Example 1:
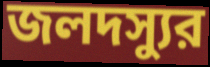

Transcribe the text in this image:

জলদস্যুর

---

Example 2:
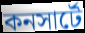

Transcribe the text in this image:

কনসার্টে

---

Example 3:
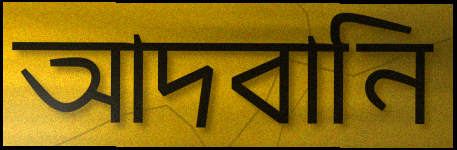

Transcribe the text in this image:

আদবানি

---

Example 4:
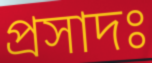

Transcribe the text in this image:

প্রসাদঃ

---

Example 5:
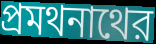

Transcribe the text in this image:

প্রমথনাথের